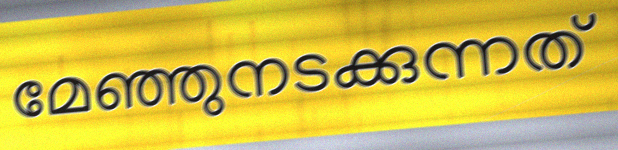
മേഞ്ഞുനടക്കുന്നത്